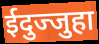
ईदुज्जुहा